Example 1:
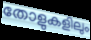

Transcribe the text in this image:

തോളുകളിലും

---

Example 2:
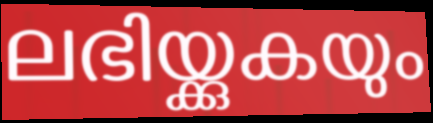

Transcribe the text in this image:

ലഭിയ്ക്കുകയും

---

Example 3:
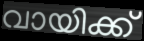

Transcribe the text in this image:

വായിക്ക്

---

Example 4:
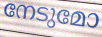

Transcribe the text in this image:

നേടുമോ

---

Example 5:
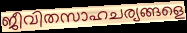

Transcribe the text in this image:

ജീവിതസാഹചര്യങ്ങളെ